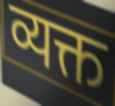
व्यक्त